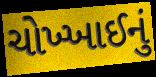
ચોખ્ખાઈનું